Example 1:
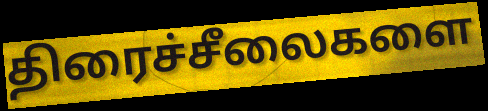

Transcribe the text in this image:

திரைச்சீலைகளை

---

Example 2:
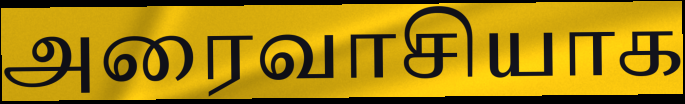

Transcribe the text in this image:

அரைவாசியாக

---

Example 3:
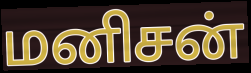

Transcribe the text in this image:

மனிசன்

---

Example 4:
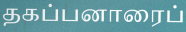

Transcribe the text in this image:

தகப்பனாரைப்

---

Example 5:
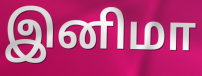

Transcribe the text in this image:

இனிமா